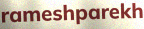
rameshparekh